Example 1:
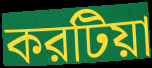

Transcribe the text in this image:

করটিয়া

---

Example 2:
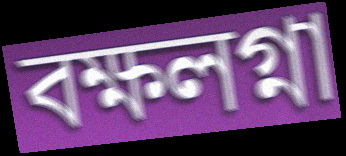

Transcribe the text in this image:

বক্ষলগ্না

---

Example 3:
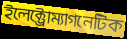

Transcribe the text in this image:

ইলেক্ট্রোম্যাগনেটিক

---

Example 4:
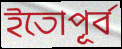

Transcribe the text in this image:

ইতোপূর্ব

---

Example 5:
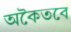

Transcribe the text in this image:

অকৈতবে